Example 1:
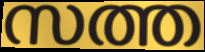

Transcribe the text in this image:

സത്ത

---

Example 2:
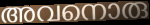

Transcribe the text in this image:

അവനൊരു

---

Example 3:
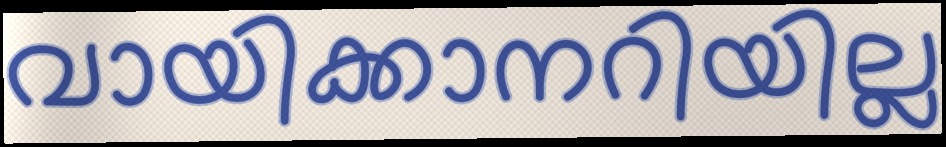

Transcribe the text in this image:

വായിക്കാനറിയില്ല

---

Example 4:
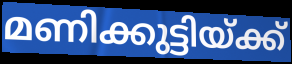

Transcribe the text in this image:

മണിക്കുട്ടിയ്ക്ക്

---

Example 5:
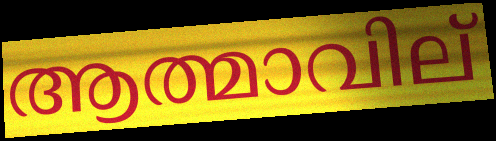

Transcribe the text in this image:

ആത്മാവില്